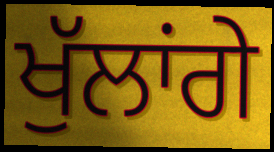
ਖੁੱਲਾਂਗੇ